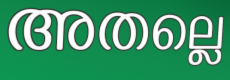
അതല്ലെ